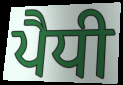
ਪੈਧੀ